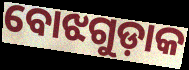
ବୋଝଗୁଡ଼ାକ